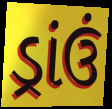
ડ્રાંઉં